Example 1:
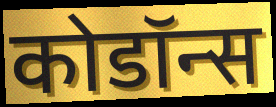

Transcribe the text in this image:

कोडॉन्स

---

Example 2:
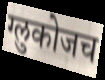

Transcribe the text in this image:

ग्लुकोजच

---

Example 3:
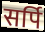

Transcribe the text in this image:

सर्पि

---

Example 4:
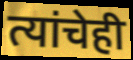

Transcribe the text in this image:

त्यांचेही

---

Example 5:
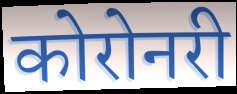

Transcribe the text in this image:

कोरोनरी